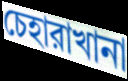
চেহারাখানা